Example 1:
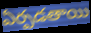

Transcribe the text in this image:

ఏర్పడతాయి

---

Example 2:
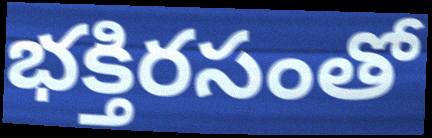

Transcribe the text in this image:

భక్తిరసంతో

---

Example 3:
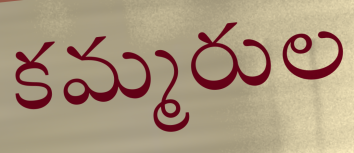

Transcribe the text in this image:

కమ్మరుల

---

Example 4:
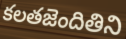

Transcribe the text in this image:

కలతజెందితిని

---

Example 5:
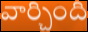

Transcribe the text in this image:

వార్చింది